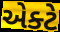
એક્ટે